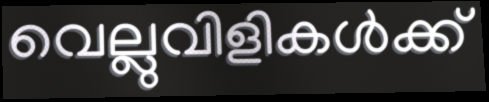
വെല്ലുവിളികൾക്ക്